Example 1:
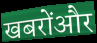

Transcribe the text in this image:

खबरोंऔर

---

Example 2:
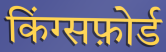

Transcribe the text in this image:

किंग्सफ़ोर्ड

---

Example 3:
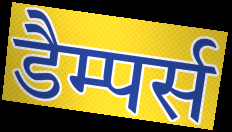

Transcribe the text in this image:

डैम्पर्स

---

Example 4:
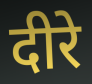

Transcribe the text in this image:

दीरे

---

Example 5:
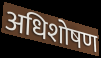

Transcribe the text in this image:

अधिशोषण